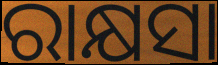
ରାକ୍ଷସା